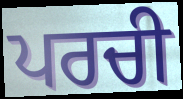
ਪਰਚੀ